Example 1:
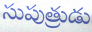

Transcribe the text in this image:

సుపుత్రుడు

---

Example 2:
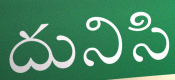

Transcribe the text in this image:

దునిసి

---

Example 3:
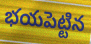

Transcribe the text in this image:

భయపెట్టిన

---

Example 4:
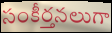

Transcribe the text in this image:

సంకీర్తనలుగా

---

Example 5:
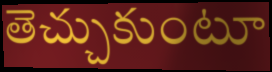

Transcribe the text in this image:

తెచ్చుకుంటూ